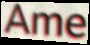
Ame